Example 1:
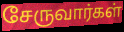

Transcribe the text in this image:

சேருவார்கள்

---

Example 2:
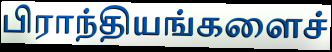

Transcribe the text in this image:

பிராந்தியங்களைச்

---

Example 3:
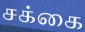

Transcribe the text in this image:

சக்கை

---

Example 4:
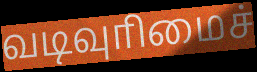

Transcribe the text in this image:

வடிவுரிமைச்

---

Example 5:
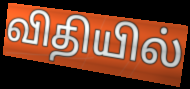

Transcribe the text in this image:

விதியில்